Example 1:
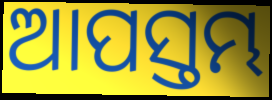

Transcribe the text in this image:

ଆପସ୍ତମ୍ଭ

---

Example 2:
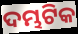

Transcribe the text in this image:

ଦମ୍ଭଟିକ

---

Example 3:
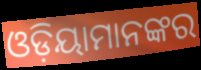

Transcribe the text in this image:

ଓଡ଼ିୟାମାନଙ୍କର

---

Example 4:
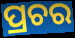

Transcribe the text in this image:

ପ୍ରଚର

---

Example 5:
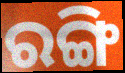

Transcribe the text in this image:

ରଙ୍ଗି